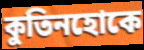
কুতিনহোকে